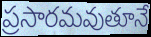
ప్రసారమవుతూనే